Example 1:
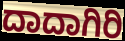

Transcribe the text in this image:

ದಾದಾಗಿರಿ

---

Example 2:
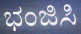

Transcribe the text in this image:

ಭಂಜಿಸಿ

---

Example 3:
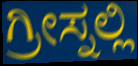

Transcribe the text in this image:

ಗ್ರೀಸ್ನಲ್ಲಿ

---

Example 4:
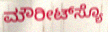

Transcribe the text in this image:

ಮೌರೀಟ್‌ಸ್ಯೊ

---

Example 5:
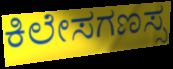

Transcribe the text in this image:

ಕಿಲೇಸಗಣಸ್ಸ